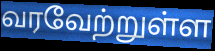
வரவேற்றுள்ள